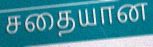
சதையான